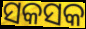
ସକସକ